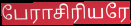
பேராசிரியரே